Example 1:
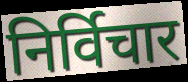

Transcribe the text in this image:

निर्विचार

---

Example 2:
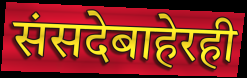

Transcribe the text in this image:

संसदेबाहेरही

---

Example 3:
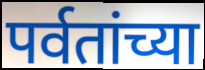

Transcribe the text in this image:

पर्वतांच्या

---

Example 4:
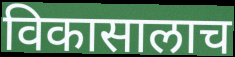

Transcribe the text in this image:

विकासालाच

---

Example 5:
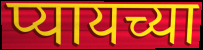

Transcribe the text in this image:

प्यायच्या